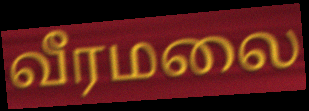
வீரமலை